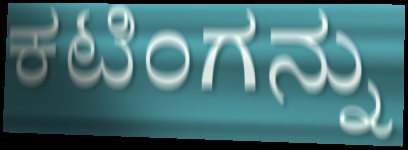
ಕಟಿಂಗನ್ನು